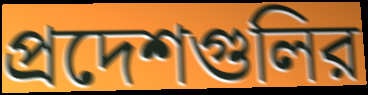
প্রদেশগুলির